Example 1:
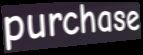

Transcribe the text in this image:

purchase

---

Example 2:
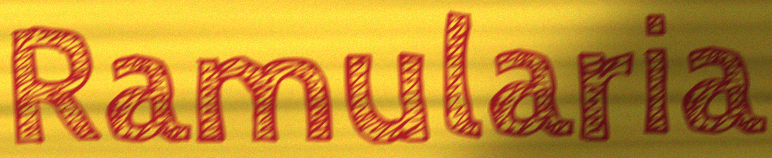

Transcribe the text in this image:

Ramularia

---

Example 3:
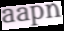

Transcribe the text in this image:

aapn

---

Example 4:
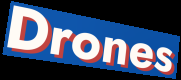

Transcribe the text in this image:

Drones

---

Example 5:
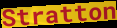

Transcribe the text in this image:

Stratton